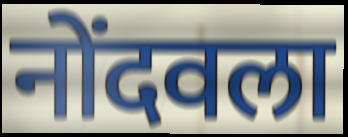
नोंदवला